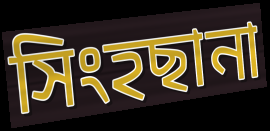
সিংহছানা